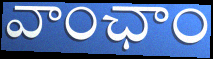
వాంఛాం